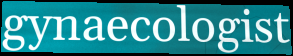
gynaecologist